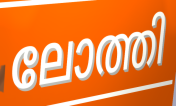
ലോത്തി